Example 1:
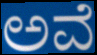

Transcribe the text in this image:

ಅವೆ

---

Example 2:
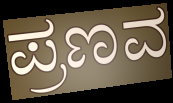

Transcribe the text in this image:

ಪ್ರಣವ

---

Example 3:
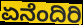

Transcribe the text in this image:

ಏನೆಂದಿರಿ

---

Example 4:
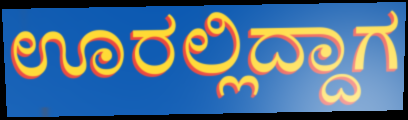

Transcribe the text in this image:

ಊರಲ್ಲಿದ್ದಾಗ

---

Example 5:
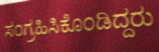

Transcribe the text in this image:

ಸಂಗ್ರಹಿಸಿಕೊಂಡಿದ್ದರು